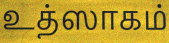
உத்ஸாகம்